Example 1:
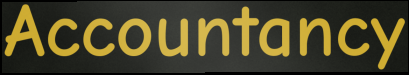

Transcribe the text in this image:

Accountancy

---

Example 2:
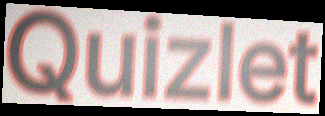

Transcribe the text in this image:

Quizlet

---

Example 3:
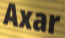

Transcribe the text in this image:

Axar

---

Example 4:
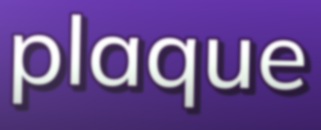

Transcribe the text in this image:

plaque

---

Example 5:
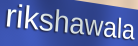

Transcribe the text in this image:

rikshawala